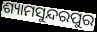
ଶ୍ୟାମସୁନ୍ଦରପୁର